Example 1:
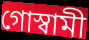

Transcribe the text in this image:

গোস্বামী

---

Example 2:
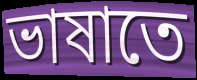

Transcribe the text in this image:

ভাষাতে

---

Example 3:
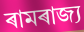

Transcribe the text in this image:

ৰামৰাজ্য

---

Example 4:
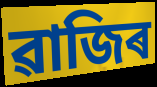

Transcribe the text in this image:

ৱাজিৰ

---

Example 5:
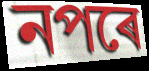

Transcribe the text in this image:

নপৰে